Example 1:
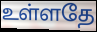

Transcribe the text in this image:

உள்ளதே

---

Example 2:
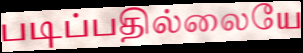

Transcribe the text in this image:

படிப்பதில்லையே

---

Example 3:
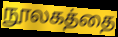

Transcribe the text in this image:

நூலகத்தை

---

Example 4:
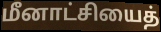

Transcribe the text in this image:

மீனாட்சியைத்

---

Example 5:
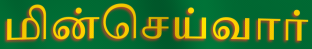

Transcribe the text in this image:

மின்செய்வார்